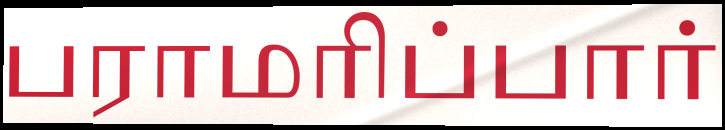
பராமரிப்பார்